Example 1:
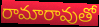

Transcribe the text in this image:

రామారావుతో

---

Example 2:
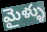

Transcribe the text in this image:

మైళ్ళు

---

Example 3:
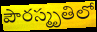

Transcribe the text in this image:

పౌరస్మృతిలో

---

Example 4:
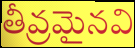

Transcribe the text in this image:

తీవ్రమైనవి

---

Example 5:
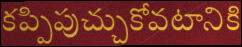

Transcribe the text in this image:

కప్పిపుచ్చుకోవటానికి